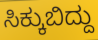
ಸಿಕ್ಕುಬಿದ್ದು